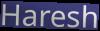
Haresh